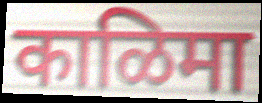
काळिमा